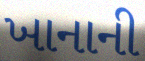
ખાનાની